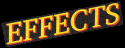
EFFECTS